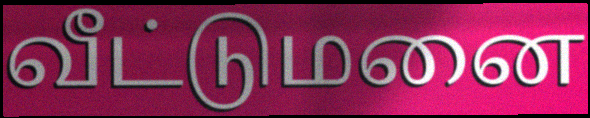
வீட்டுமனை